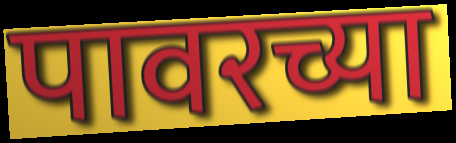
पावरच्या